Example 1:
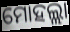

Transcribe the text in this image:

ମୋହଲ୍ଲା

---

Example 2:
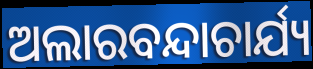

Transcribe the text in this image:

ଅଲାରବନ୍ଦାଚାର୍ଯ୍ୟ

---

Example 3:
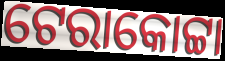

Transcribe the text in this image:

ଟେରାକୋଟ୍ଟା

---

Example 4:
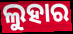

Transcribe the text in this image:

ଲୁହାର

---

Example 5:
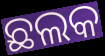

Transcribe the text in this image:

ଛଲକ